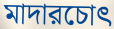
মাদারচোৎ